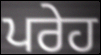
ਪਰੇਹ